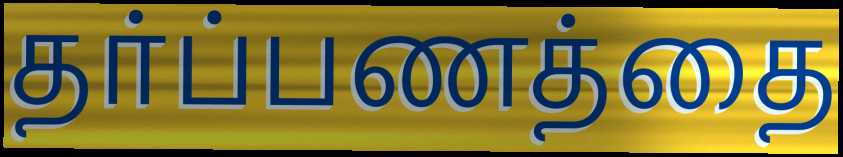
தர்ப்பணத்தை